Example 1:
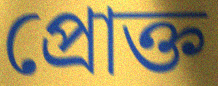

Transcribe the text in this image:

প্রোক্ত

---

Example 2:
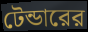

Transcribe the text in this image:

টেন্ডারের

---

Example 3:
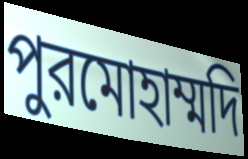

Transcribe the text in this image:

পুরমোহাম্মদি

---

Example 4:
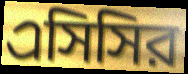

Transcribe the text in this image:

এসিসির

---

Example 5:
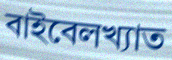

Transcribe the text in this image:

বাইবেলখ্যাত